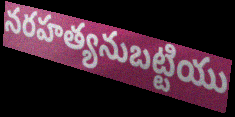
నరహత్యనుబట్టియు